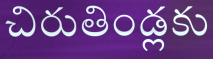
చిరుతిండ్లకు